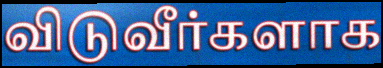
விடுவீர்களாக